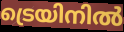
ട്രെയിനിൽ